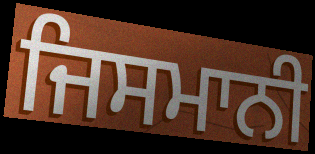
ਜਿਸਮਾਨੀ